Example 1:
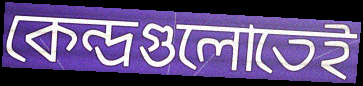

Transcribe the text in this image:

কেন্দ্রগুলোতেই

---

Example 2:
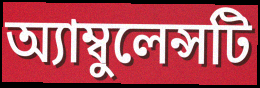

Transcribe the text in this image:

অ্যাম্বুলেন্সটি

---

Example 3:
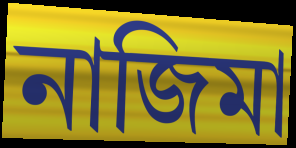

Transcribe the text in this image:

নাজিমা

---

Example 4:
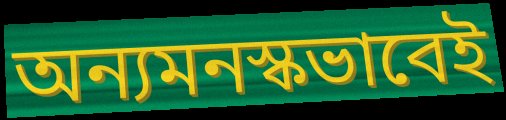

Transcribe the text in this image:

অন্যমনস্কভাবেই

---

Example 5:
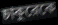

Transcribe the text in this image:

চাকুরেকে